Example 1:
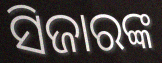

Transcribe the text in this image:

ସିଜାରଙ୍କ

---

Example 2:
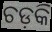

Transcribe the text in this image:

ଚଡ଼କି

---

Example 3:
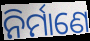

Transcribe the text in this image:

ନିର୍ମାଣେ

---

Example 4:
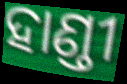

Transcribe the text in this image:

ହାଣ୍ଡୀ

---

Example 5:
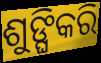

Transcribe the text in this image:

ଶୁଙ୍ଘିକରି